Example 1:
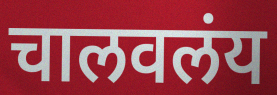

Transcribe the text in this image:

चालवलंय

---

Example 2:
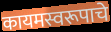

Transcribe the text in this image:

कायमस्वरूपाचे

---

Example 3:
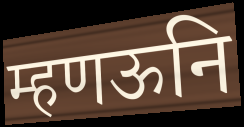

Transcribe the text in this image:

म्हणऊनि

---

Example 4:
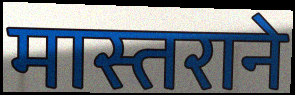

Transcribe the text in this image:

मास्तराने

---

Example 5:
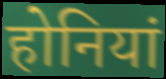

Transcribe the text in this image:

होनियां